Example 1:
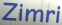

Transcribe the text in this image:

Zimri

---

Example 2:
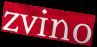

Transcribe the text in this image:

zvino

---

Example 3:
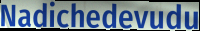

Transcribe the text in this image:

Nadichedevudu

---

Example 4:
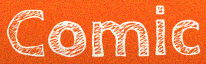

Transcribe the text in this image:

Comic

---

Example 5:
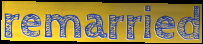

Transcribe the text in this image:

remarried